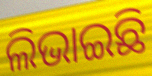
ଲିଭାଇଛି